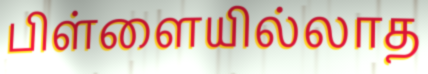
பிள்ளையில்லாத